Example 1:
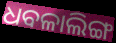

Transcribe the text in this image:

ଧବଳାଲିଙ୍ଗ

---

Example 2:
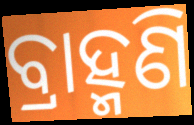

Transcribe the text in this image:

ବ୍ରାହ୍ମଣି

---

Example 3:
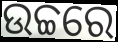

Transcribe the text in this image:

ଉଚ୍ଚରେ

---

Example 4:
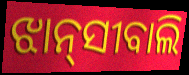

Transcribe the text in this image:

ଝାନ୍‌ସୀବାଲି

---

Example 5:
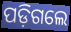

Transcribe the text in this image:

ପଡ଼ିଗଲେ